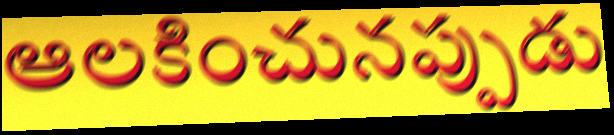
ఆలకించునప్పుడు